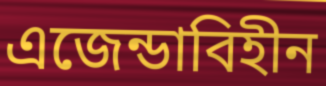
এজেন্ডাবিহীন